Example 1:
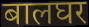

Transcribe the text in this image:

बालघर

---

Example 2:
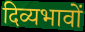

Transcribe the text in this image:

दिव्यभावों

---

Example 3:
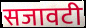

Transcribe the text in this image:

सजावटी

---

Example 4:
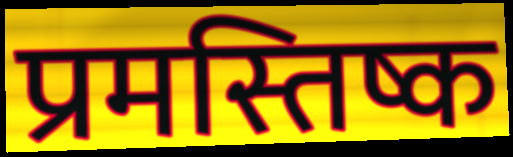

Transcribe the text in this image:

प्रमस्तिष्क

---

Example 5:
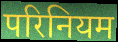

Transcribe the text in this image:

परिनियम